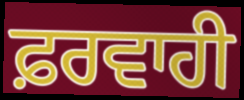
ਫ਼ਰਵਾਹੀ